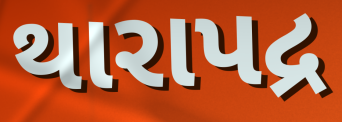
થારાપદ્ર